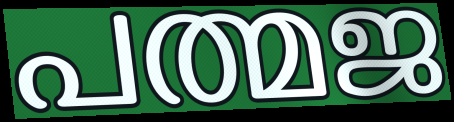
പത്മജ